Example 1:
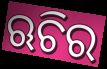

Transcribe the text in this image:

ଋଚିର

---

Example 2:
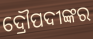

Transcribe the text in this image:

ଦ୍ରୌପଦୀଙ୍କର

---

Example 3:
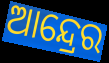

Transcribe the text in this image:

ଆନ୍ଦ୍ରେର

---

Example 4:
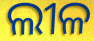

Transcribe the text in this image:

ଲୀଳ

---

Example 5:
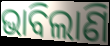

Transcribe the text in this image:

ଭାବିଲାଣି